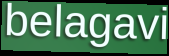
belagavi